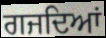
ਗਜਦਿਆਂ